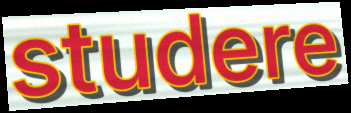
studere